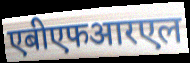
एबीएफआरएल